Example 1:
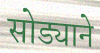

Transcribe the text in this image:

सोड्याने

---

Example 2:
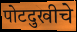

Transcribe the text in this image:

पोटदुखीचे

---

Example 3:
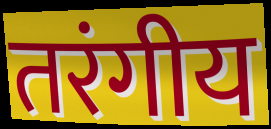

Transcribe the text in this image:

तरंगीय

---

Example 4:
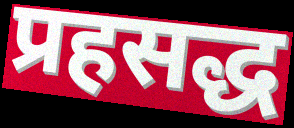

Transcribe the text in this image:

प्रहसद्ध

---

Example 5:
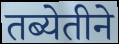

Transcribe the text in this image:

तब्येतीने